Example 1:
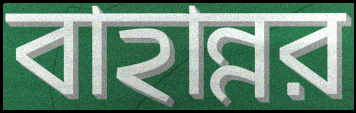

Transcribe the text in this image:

বাহান্নর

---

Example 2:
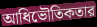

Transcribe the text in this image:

আধিভৌতিকতার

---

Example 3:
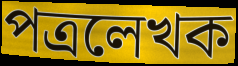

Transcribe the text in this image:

পত্রলেখক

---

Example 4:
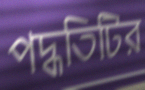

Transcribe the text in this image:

পদ্ধতিটির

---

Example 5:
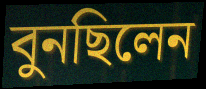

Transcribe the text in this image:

বুনছিলেন